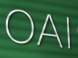
OAI